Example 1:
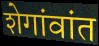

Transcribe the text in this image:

शेगांवांत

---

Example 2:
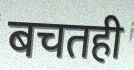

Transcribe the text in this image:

बचतही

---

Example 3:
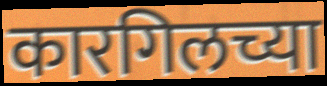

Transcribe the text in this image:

कारगिलच्या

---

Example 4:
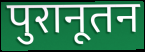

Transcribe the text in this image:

पुरानूतन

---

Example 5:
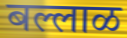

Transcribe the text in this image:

बल्लाळ